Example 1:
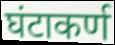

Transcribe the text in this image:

घंटाकर्ण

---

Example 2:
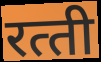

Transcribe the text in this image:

रत्‍ती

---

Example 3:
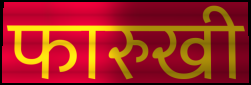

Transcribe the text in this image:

फारुखी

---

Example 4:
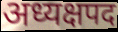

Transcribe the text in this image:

अध्यक्षपद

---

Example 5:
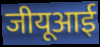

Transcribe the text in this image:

जीयूआई